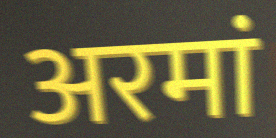
अरमां